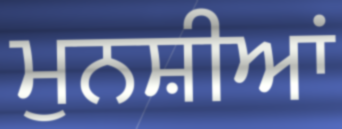
ਮੁਨਸ਼ੀਆਂ